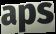
aps